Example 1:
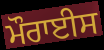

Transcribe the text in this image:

ਮੌਰਾਈਸ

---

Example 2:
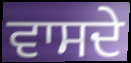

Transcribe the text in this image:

ਵਾਸਦੇ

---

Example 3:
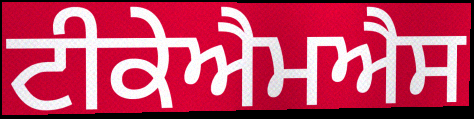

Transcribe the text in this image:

ਟੀਕੇਐਮਐਸ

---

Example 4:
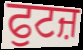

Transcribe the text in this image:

ਫੁਟਜ਼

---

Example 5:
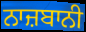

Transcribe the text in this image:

ਨਾਜ਼ਬਾਨੀ